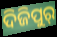
ଦିଜିପୁର୍